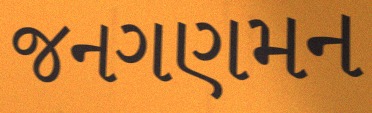
જનગણમન